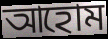
আহোম